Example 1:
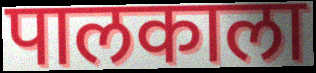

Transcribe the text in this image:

पालकाला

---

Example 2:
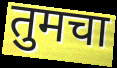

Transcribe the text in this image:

तुमचा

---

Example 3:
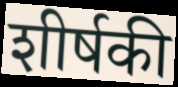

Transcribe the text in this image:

शीर्षकी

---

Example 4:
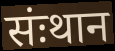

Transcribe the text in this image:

संःथान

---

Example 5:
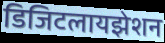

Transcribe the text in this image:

डिजिटलायझेशन